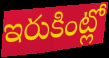
ఇరుకింట్లో